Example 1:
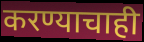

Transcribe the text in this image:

करण्याचाही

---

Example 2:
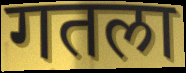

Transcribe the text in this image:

गतला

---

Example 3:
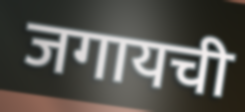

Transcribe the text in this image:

जगायची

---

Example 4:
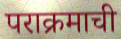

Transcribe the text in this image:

पराक्रमाची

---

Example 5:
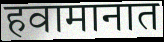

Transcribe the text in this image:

हवामानात